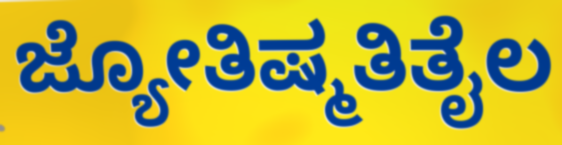
ಜ್ಯೋತಿಷ್ಮತಿತೈಲ